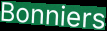
Bonniers